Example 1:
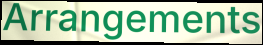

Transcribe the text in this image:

Arrangements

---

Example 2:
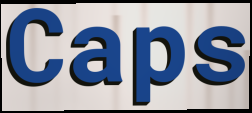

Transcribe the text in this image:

Caps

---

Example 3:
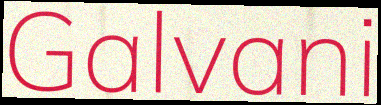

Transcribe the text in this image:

Galvani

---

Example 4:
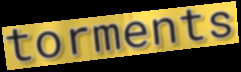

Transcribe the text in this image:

torments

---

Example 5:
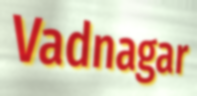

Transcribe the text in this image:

Vadnagar